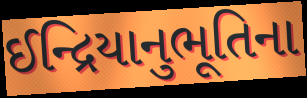
ઈન્દ્રિયાનુભૂતિના